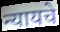
न्यायचे